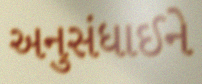
અનુસંધાઈને